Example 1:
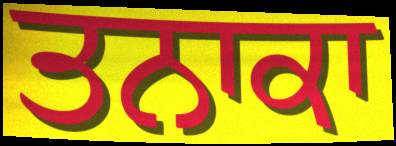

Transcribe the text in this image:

ਤਨਾਕਾ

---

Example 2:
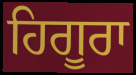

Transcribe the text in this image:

ਹਿਗੂਰਾ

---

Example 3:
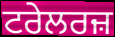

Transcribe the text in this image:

ਟਰੇਲਰਜ਼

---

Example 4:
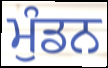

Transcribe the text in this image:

ਮੁੰਡਨ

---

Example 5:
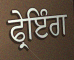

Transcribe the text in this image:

ਫ੍ਰੇਇੰਗ